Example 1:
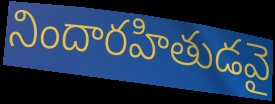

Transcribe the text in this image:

నిందారహితుడవై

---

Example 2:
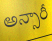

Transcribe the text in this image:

అన్సారీ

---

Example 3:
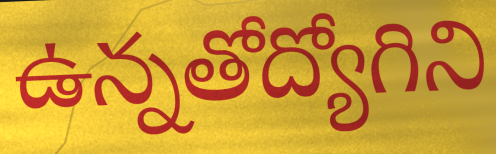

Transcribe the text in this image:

ఉన్నతోద్యోగిని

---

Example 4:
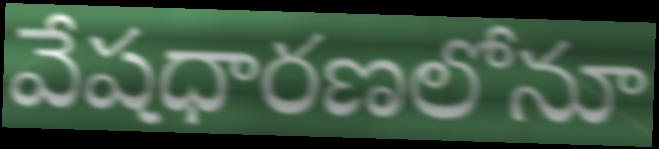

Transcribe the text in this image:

వేషధారణలోనూ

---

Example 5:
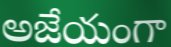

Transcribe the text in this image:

అజేయంగా